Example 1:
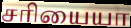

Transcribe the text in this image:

சரியையா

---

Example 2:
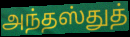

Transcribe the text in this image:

அந்தஸ்துத்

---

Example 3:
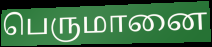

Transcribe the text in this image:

பெருமானை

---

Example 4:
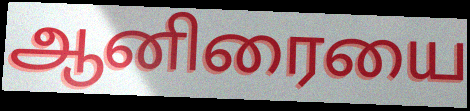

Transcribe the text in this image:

ஆனிரையை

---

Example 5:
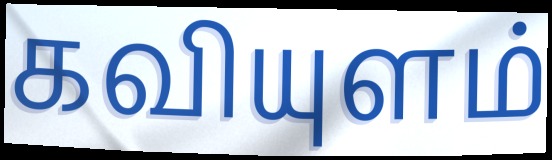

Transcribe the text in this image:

கவியுளம்